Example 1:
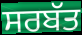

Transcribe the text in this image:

ਸਰਬੱਤ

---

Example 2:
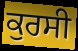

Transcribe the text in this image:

ਕੁਰਸੀ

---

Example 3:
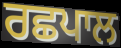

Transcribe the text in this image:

ਰਛਪਾਲ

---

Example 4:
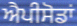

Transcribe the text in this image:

ਐਪੀਸੋਡਾਂ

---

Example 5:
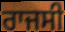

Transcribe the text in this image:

ਰਾਜਸੀ